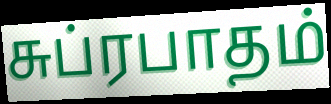
சுப்ரபாதம்